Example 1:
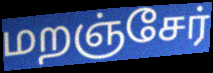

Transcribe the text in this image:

மறஞ்சேர்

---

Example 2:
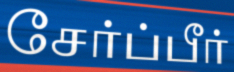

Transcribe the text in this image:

சேர்ப்பீர்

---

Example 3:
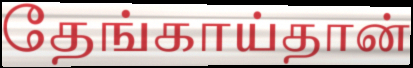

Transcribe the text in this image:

தேங்காய்தான்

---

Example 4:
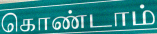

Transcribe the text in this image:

கொண்டாம்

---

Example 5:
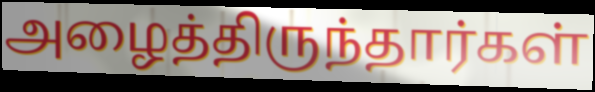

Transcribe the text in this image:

அழைத்திருந்தார்கள்